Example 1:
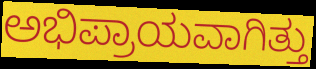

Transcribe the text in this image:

ಅಭಿಪ್ರಾಯವಾಗಿತ್ತು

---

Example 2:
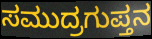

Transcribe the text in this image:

ಸಮುದ್ರಗುಪ್ತನ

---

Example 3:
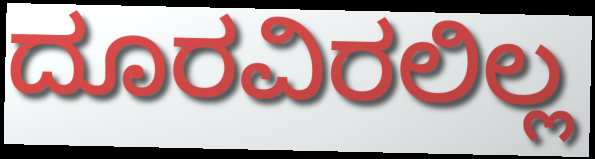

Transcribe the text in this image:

ದೂರವಿರಲಿಲ್ಲ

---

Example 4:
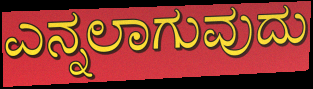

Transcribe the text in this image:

ಎನ್ನಲಾಗುವುದು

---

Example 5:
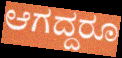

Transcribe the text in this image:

ಆಗದ್ದರೂ